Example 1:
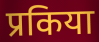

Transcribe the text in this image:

प्रकिया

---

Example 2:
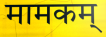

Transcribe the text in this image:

मामकम्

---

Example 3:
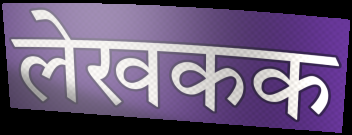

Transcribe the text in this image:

लेखकक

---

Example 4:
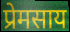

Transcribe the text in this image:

प्रेमसाय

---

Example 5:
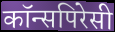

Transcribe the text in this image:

कॉन्सपिरेसी